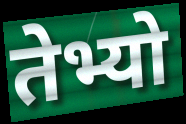
तेभ्यो